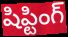
షిప్టింగ్